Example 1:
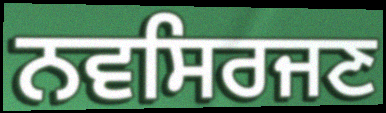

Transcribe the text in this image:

ਨਵਸਿਰਜਣ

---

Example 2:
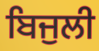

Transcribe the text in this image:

ਬਿਜੁਲੀ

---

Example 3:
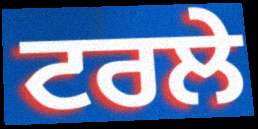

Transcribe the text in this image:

ਟਰਲੇ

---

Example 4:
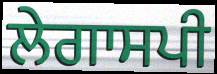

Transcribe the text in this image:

ਲੇਗਾਸਪੀ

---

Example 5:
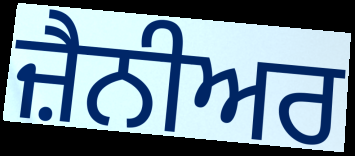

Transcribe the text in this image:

ਜ਼ੈਨੀਅਰ